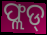
ଫ୍ଲଡ୍